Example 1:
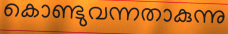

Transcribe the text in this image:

കൊണ്ടുവന്നതാകുന്നു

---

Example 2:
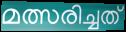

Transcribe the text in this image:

മത്സരിച്ചത്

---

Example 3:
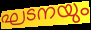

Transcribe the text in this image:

ഘടനയും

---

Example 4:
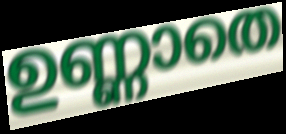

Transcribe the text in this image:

ഉണ്ണാതെ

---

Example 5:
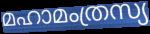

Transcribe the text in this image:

മഹാമംത്രസ്യ